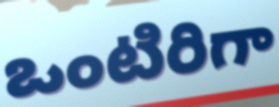
ఒంటిరిగా